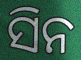
ସିନ